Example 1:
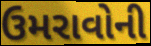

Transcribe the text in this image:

ઉમરાવોની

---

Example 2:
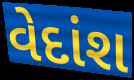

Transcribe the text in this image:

વેદાંશ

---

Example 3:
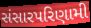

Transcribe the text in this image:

સંસારપરિણામી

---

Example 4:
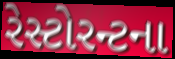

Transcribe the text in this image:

રેસ્ટોરન્ટના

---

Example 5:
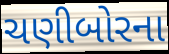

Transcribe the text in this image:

ચણીબોરના